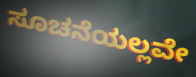
ಸೂಚನೆಯಲ್ಲವೇ